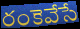
రంకెవేసే